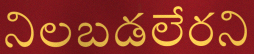
నిలబడలేరని